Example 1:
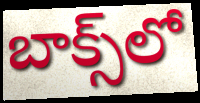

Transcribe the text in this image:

బాక్స్‌లో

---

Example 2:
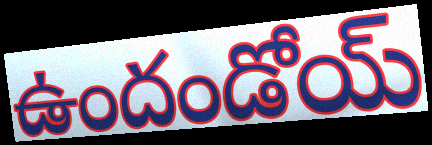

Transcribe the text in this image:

ఉందండోయ్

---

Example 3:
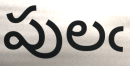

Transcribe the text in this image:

పులఁ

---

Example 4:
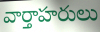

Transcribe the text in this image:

వార్తాహరులు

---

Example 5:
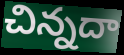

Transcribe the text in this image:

చిన్నదా